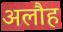
अलौह